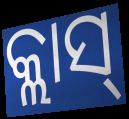
କ୍ଲାସ୍